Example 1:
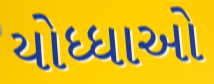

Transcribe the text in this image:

યોધ્ધાઓ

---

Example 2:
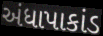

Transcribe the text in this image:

અંધાપાકાંડ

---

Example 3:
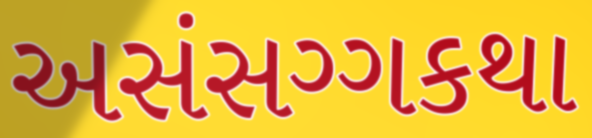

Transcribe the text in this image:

અસંસગ્ગકથા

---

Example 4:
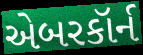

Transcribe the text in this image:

એબરકૉર્ન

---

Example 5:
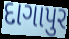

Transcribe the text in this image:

દાગાપુર